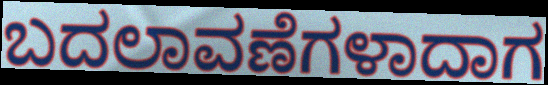
ಬದಲಾವಣೆಗಳಾದಾಗ